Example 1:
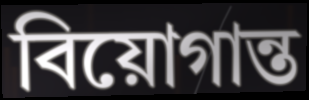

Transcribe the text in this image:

বিয়োগান্ত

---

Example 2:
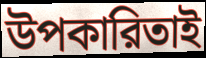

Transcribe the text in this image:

উপকারিতাই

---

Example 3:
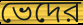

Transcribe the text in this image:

ভেদের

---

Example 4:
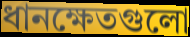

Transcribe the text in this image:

ধানক্ষেতগুলো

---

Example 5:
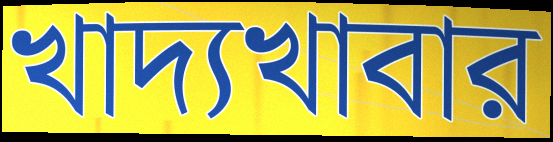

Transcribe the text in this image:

খাদ্যখাবার